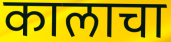
कालाचा